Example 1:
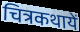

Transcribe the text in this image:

चित्रकथायें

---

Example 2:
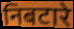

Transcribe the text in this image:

निबटारे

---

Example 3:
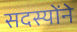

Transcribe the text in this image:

सदस्योंने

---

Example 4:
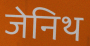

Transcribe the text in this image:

जेनिथ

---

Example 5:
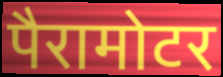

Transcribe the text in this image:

पैरामोटर